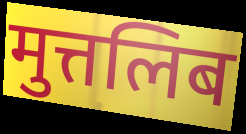
मुत्तलिब